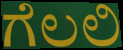
ಗೆಲಲಿ